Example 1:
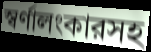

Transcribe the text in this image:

স্বর্ণালংকারসহ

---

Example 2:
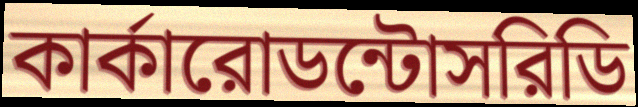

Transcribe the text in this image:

কার্কারোডন্টোসরিডি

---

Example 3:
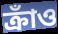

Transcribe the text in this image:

ক্রাঁও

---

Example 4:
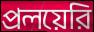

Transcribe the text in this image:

প্রলয়েরি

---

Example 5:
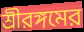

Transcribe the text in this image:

শ্রীরঙ্গমের